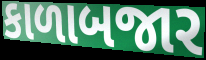
કાળાબજાર